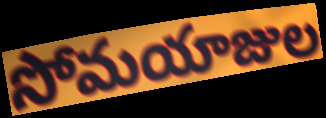
సోమయాజుల